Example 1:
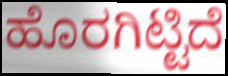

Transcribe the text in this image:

ಹೊರಗಿಟ್ಟಿದೆ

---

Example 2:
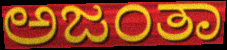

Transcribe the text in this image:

ಅಜಂತಾ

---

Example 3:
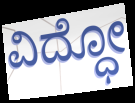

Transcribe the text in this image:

ವಿದ್ಧೋ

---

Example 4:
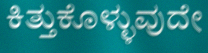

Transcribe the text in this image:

ಕಿತ್ತುಕೊಳ್ಳುವುದೇ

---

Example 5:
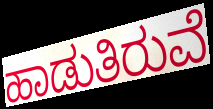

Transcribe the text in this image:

ಹಾಡುತಿರುವೆ